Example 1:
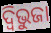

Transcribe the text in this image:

ଦ୍ଵିଭୁଜା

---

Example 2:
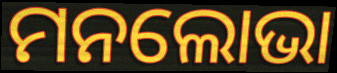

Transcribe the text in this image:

ମନଲୋଭା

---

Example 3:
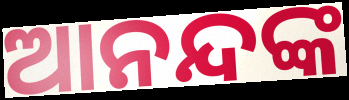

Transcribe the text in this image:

ଆନନ୍ଦଙ୍କ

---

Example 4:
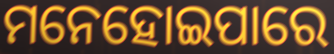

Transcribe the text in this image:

ମନେହୋଇପାରେ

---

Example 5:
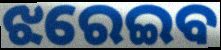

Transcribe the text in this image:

ଝରେଇବ